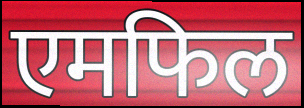
एमफिल